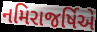
નમિરાજર્ષિએ